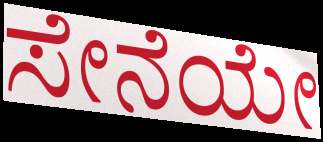
ಸೇನೆಯೇ